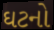
ઘટનો